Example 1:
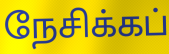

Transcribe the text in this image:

நேசிக்கப்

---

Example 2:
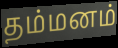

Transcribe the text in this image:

தம்மனம்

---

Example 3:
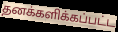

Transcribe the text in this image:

தனக்களிக்கப்பட்ட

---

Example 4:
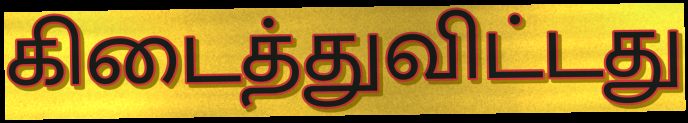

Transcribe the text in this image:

கிடைத்துவிட்டது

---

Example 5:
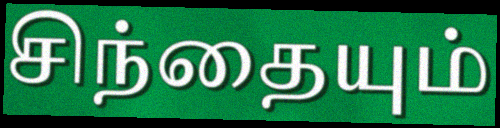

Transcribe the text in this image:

சிந்தையும்